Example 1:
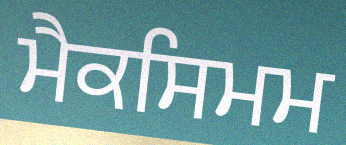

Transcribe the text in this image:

ਮੈਕਸਿਮਮ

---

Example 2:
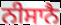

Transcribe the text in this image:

ਨੀਸਾਨੈ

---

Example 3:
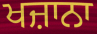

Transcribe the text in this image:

ਖਜ਼ਾਨਾ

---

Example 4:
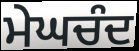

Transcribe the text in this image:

ਮੇਘਚੰਦ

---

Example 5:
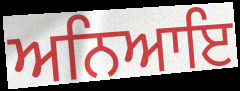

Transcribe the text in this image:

ਅਨਿਆਇ